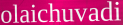
olaichuvadi